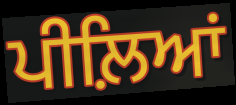
ਪੀਲ਼ਿਆਂ